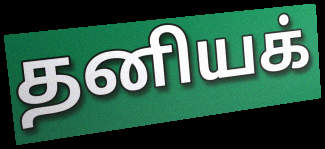
தனியக்